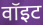
वॉइट